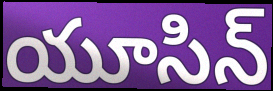
యూసిన్